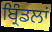
ਬ੍ਰਿੰਡਲਾਂ